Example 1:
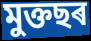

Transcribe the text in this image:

মুক্তছৰ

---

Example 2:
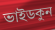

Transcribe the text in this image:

ভাইডকুন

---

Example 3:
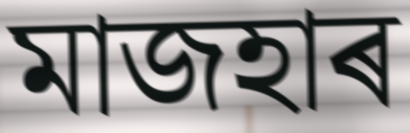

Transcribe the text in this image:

মাজহাৰ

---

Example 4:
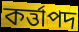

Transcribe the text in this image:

কৰ্ত্তাপদ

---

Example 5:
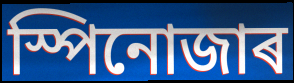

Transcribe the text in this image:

স্পিনোজাৰ